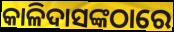
କାଳିଦାସଙ୍କଠାରେ